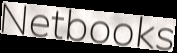
Netbooks